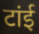
टांई